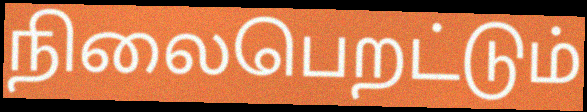
நிலைபெறட்டும்